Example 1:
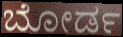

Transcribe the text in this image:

ಬೋರ್ಡ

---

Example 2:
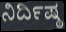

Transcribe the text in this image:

ನಿರ್ದಿಷ್ಠ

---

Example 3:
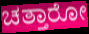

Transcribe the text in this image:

ಚತ್ತಾರೋ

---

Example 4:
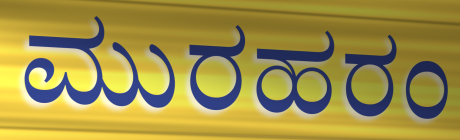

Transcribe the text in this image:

ಮುರಹರಂ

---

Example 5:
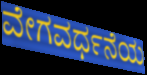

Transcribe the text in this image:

ವೇಗವರ್ಧನೆಯ